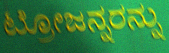
ಟ್ರೋಜನ್ನರನ್ನು